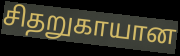
சிதறுகாயான